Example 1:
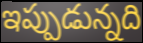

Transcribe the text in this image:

ఇప్పుడున్నది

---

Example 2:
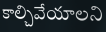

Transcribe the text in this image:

కాల్చివేయాలని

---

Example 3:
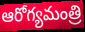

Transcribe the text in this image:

ఆరోగ్యమంత్రి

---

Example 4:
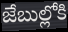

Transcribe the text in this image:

జేబుల్లోకి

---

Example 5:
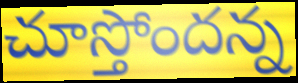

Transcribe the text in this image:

చూస్తోందన్న